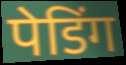
पेडिंग